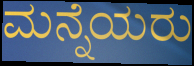
ಮನ್ನೆಯರು